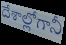
దేశాల్లోగానీ